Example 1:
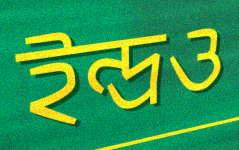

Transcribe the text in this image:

ইন্দ্রও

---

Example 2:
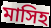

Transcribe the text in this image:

মাসিহ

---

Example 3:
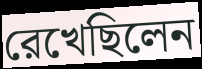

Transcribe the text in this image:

রেখেছিলেন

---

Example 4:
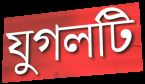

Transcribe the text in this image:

যুগলটি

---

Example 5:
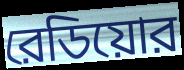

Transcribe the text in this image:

রেডিয়োর